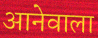
आनेवाला